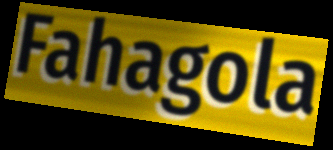
Fahagola